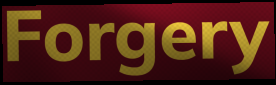
Forgery